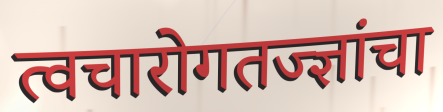
त्वचारोगतज्ज्ञांचा